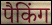
पैकिंग